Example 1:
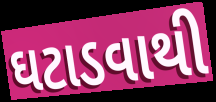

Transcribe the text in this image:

ઘટાડવાથી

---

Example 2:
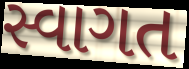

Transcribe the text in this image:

સ્વાગત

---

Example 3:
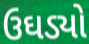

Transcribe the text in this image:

ઉઘડ્યો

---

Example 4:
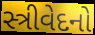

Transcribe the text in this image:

સ્ત્રીવેદનો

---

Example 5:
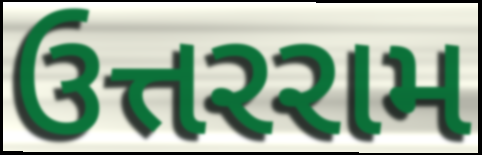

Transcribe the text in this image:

ઉત્તરરામ